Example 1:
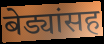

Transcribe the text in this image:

बेड्यांसह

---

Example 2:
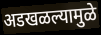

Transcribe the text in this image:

अडखळल्यामुळे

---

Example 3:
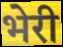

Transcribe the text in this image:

भेरी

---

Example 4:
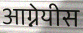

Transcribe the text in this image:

आग्नेयीस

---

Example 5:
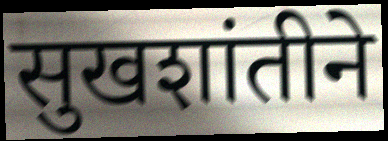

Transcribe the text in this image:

सुखशांतीने